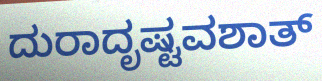
ದುರಾದೃಷ್ಟವಶಾತ್